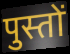
पुस्तों